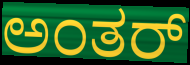
ಅಂತರ್